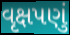
વૃક્ષપણું